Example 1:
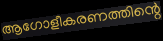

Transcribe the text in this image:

ആഗോളീകരണത്തിന്റെ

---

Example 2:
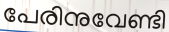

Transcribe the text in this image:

പേരിനുവേണ്ടി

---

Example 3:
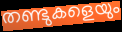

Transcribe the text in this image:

തണ്ടുകളെയും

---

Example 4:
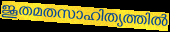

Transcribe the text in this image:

ജൂതമതസാഹിത്യത്തിൽ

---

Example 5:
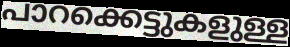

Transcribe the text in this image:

പാറക്കെട്ടുകളുള്ള